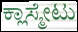
ಕ್ಲಾಸ್ಮೇಟು